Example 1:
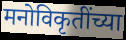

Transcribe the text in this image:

मनोविकृतींच्या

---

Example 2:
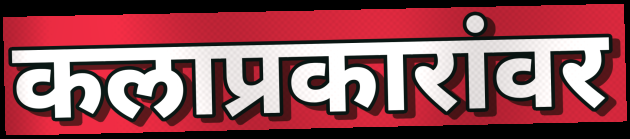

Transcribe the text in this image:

कलाप्रकारांवर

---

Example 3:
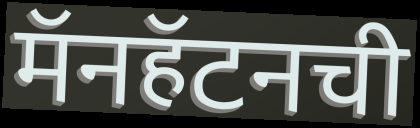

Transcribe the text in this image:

मॅनहॅटनची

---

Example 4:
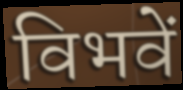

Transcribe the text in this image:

विभवें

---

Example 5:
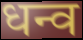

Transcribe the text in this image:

धन्व